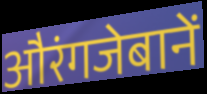
औरंगजेबानें